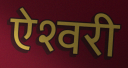
ऐश्वरी